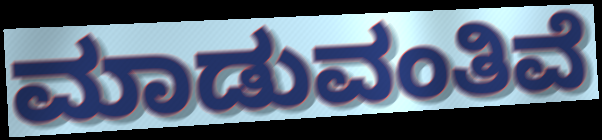
ಮಾಡುವಂತಿವೆ